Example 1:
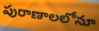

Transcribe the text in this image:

పురాణాలలోనూ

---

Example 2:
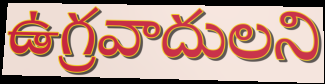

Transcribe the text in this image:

ఉగ్రవాదులని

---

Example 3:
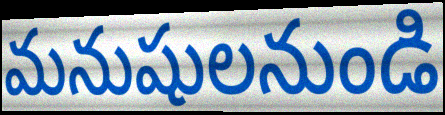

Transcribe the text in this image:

మనుషులనుండి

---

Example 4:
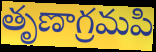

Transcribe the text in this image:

తృణాగ్రమపి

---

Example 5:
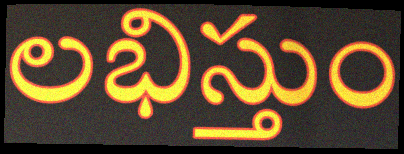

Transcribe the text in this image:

లభిస్తుం